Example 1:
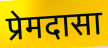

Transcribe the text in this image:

प्रेमदासा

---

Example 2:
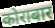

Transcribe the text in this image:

कोराबार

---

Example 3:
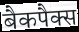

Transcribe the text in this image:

बैकपैक्स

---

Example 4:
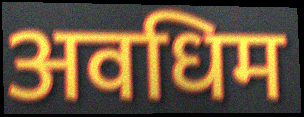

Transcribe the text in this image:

अवधिम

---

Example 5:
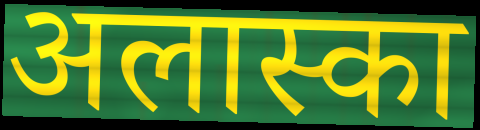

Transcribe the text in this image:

अलास्का